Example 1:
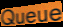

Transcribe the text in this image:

Queue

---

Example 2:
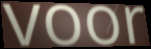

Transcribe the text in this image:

voor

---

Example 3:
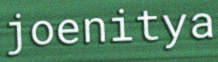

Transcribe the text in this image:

joenitya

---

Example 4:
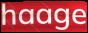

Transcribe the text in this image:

haage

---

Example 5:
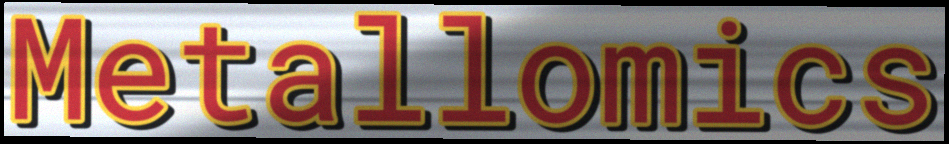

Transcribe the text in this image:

Metallomics